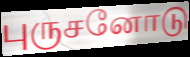
புருசனோடு